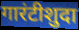
गारंटीशुदा